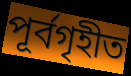
পূর্বগৃহীত